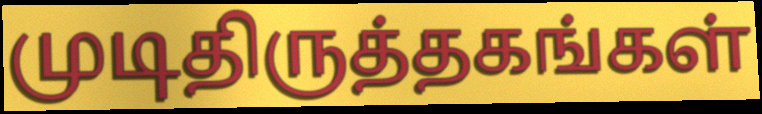
முடிதிருத்தகங்கள்